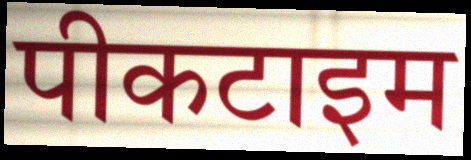
पीकटाइम